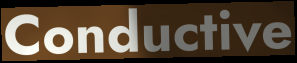
Conductive